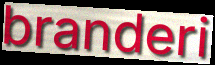
branderi